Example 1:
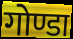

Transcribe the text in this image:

गोण्डा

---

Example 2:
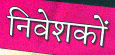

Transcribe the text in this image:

निवेशकों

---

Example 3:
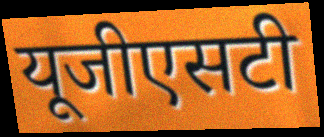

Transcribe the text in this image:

यूजीएसटी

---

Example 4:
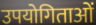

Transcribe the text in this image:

उपयोगिताओं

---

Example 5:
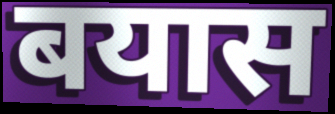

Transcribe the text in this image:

बयास